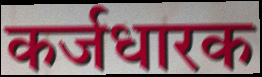
कर्जधारक